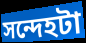
সন্দেহটা